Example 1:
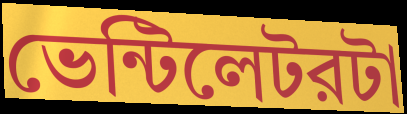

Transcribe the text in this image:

ভেন্টিলেটরটা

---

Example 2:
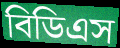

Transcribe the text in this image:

বিডিএস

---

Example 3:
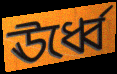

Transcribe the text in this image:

ঊর্ধ্বে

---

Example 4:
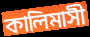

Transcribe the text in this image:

কালিমাসী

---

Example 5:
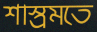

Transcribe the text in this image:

শাস্ত্রমতে